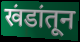
खंडांतून